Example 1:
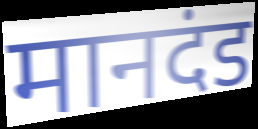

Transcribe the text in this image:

मानदंड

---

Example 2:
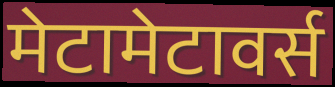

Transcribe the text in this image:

मेटामेटावर्स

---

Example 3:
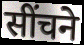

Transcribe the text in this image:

सींचने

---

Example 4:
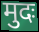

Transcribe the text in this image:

मुदः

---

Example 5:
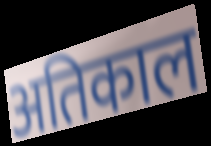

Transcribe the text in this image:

अतिकाल